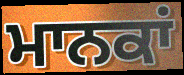
ਮਾਨਕਾਂ